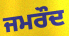
ਜਮਰੌਦ